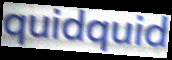
quidquid